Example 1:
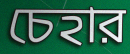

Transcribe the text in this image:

চেহার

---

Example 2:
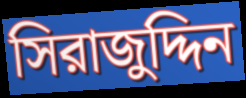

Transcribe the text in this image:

সিরাজুদ্দিন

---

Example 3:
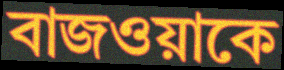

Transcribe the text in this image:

বাজওয়াকে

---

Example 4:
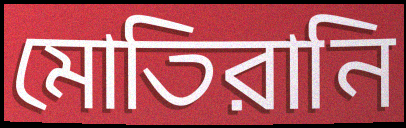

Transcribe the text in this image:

মোতিরানি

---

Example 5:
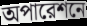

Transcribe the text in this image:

অপারেশনে